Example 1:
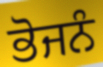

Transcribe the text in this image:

ਭੋਜਨੰ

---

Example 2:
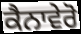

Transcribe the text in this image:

ਕੈਨਾਵੇਰੋ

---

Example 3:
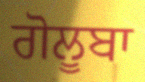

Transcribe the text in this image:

ਗੋਲੂਬਾ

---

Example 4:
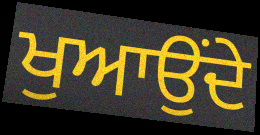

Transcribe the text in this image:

ਖੁਆਉਂਦੇ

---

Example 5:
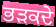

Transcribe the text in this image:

ਭੜਕਦੇ